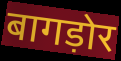
बागड़ोर